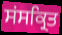
ਸਂਸਕ੍ਰਿਤ